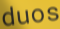
duos